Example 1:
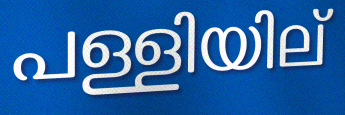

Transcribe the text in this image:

പള്ളിയില്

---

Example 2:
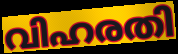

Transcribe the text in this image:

വിഹരതി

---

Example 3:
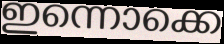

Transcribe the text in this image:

ഇന്നൊക്കെ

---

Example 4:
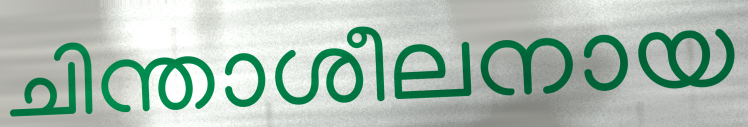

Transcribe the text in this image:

ചിന്താശീലനായ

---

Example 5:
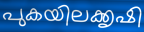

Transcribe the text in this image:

പുകയിലക്കൃഷി